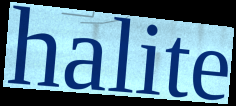
halite